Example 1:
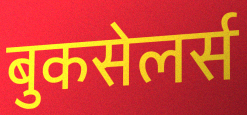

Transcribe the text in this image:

बुकसेलर्स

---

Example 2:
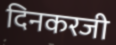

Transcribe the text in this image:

दिनकरजी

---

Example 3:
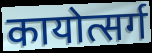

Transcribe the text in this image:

कायोत्सर्ग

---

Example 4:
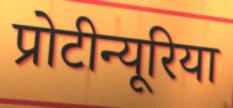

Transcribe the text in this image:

प्रोटीन्यूरिया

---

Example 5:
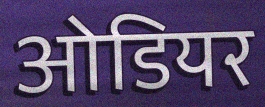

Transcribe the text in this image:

ओडियर